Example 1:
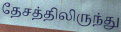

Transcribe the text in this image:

தேசத்திலிருந்து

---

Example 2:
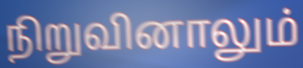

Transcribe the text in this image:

நிறுவினாலும்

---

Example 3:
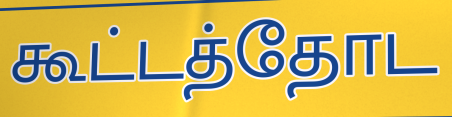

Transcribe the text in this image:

கூட்டத்தோட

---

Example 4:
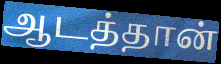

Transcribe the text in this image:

ஆடத்தான்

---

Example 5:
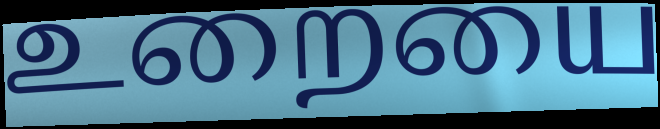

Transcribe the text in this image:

உறையை